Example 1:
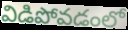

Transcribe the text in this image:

విడిపోవడంలో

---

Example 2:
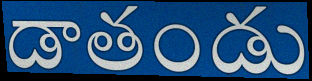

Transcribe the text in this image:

డాతండు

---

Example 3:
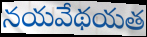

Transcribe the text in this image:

నయవేథయత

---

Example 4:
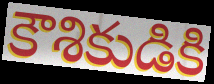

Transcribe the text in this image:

కౌశికుడికి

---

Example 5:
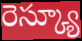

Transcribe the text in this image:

రెస్క్యూ